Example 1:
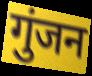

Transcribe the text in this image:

गुंजन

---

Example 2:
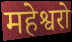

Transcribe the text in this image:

महेश्वरो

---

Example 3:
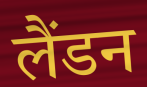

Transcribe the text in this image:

लैंडन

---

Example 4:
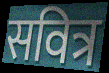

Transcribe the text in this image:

सवित्र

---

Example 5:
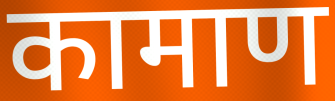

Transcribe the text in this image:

कामाण